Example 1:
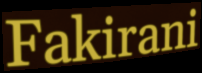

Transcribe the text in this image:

Fakirani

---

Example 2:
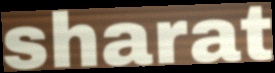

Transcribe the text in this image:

sharat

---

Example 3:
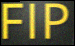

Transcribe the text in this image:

FIP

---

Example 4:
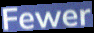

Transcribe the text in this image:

Fewer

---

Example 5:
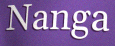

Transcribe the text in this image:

Nanga